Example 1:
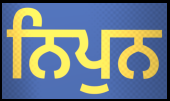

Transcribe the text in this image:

ਨਿਪੁਨ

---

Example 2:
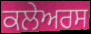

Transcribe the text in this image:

ਕਲੇਅਰਸ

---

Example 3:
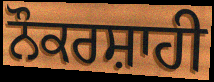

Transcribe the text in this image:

ਨੌਕਰਸ਼ਾਹੀ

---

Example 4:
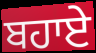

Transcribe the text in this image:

ਬਹਾਏ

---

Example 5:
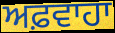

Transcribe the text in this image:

ਅਫ਼ਵਾਹਾ